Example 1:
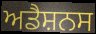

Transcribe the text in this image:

ਅਡੈਸ਼ਨਸ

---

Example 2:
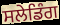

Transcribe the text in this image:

ਸਲੇਡਿੰਗ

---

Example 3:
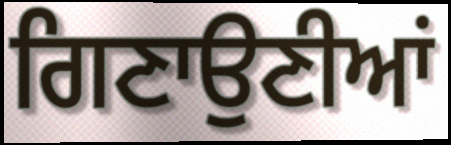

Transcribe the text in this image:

ਗਿਣਾਉਣੀਆਂ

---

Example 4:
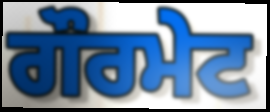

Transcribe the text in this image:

ਗੌਰਮੇਟ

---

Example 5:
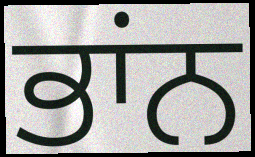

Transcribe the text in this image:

ਭਾਂਨ